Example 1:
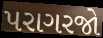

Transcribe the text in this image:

પરાગરજો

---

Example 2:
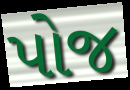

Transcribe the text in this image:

પોજ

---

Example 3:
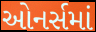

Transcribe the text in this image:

ઓનર્સમાં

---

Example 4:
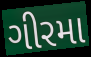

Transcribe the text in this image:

ગીરમા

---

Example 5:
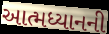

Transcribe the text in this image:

આત્મધ્યાનની